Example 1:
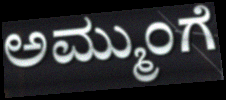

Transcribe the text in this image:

ಅಮ್ಮುಂಗೆ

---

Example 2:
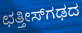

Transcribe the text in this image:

ಛತ್ತೀಸ್‌ಗಢದ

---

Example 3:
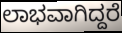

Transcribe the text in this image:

ಲಾಭವಾಗಿದ್ದರೆ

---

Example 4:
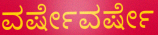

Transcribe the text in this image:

ವರ್ಷೇವರ್ಷೇ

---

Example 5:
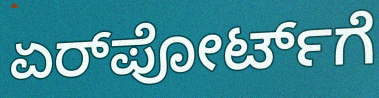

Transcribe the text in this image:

ಏರ್‌ಪೋರ್ಟ್‌ಗೆ